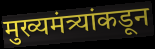
मुख्यमंत्र्यांकडून